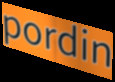
pordin